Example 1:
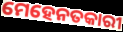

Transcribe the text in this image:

ମେହେନତକାରୀ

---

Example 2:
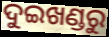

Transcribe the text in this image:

ଦୁଇଖଣ୍ଡରୁ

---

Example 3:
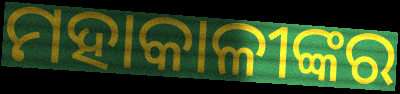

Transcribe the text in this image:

ମହାକାଳୀଙ୍କର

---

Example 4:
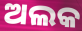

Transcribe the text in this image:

ଅଲକ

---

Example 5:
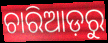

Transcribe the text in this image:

ଚାରିଆଡ଼ରୁ